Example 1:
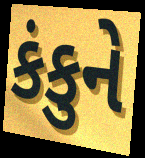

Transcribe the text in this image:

કંકુને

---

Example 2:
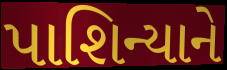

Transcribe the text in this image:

પાશિન્યાને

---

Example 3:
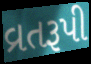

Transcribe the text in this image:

વ્રતરૂપી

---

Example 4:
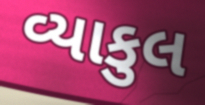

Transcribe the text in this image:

વ્યાકુલ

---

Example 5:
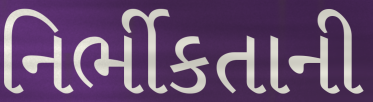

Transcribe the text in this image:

નિર્ભીકતાની